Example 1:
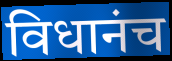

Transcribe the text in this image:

विधानंच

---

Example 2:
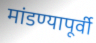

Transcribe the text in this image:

मांडण्यापूर्वी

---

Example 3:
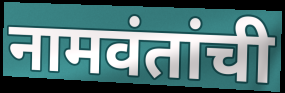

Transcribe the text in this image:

नामवंतांची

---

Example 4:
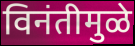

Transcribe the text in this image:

विनंतीमुळे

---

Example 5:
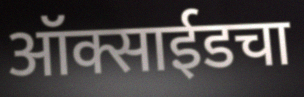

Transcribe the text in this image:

ऑक्साईडचा